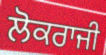
ਲੋਕਰਾਜੀ